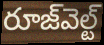
రూజ్‌వెల్ట్